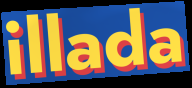
illada